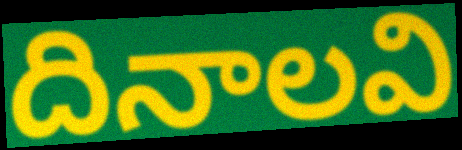
దినాలవి